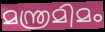
മന്ത്രമിമം